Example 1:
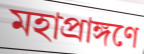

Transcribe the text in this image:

মহাপ্রাঙ্গণে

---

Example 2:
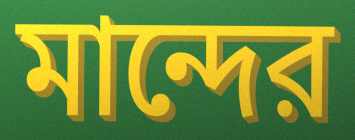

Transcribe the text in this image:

মান্দের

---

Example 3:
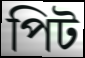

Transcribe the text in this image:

পিট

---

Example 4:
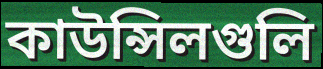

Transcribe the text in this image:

কাউন্সিলগুলি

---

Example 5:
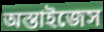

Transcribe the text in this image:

অস্তাইজেস